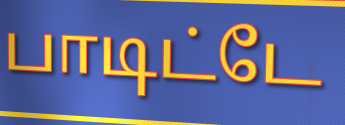
பாடிட்டே